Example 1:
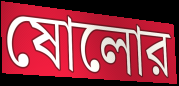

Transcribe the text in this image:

ষোলোর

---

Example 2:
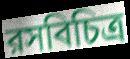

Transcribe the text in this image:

রসবিচিত্র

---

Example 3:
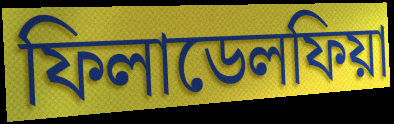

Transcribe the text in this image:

ফিলাডেলফিয়া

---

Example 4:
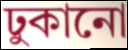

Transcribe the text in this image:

ঢুকানো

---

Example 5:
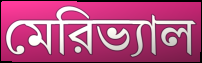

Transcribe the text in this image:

মেরিভ্যাল